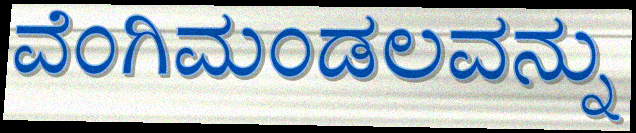
ವೆಂಗಿಮಂಡಲವನ್ನು